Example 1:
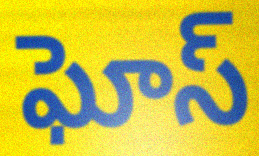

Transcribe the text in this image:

ఘోస్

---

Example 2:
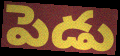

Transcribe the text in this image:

పెడు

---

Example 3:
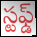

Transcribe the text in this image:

స్టఫ్డ్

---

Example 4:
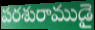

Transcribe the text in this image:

పరశురాముడై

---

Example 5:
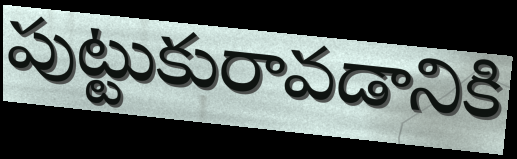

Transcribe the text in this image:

పుట్టుకురావడానికి